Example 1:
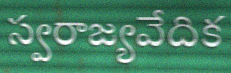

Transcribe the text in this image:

స్వరాజ్యవేదిక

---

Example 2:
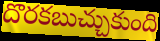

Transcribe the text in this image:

దొరకబుచ్చుకుంది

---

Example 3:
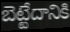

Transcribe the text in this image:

బెట్టేదానికి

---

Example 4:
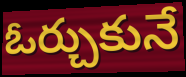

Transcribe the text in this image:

ఓర్చుకునే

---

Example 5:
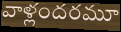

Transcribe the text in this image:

వాళ్లందరమూ